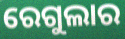
ରେଗୁଲାର